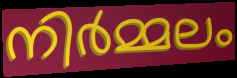
നിർമ്മലം